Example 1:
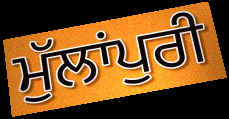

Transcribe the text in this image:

ਮੁੱਲਾਂਪੁਰੀ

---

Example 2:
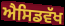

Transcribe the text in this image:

ਐਸਿਡਵੱਖ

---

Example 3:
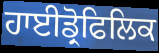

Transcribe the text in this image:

ਹਾਈਡ੍ਰੋਫਿਲਿਕ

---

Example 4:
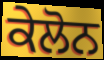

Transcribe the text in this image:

ਕੇਲੋਨ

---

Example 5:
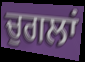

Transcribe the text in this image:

ਚੁਗਲਾਂ